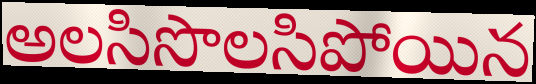
అలసిసొలసిపోయిన